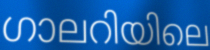
ഗാലറിയിലെ